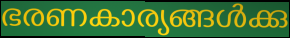
ഭരണകാര്യങ്ങൾക്കു